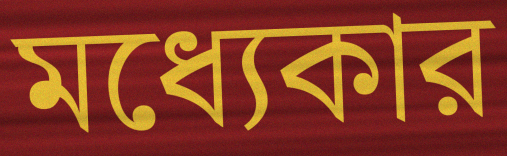
মধ্যেকার